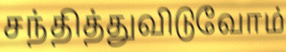
சந்தித்துவிடுவோம்